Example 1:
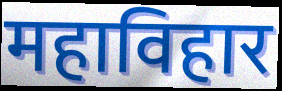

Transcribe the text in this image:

महाविहार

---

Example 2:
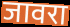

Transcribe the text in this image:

जावरा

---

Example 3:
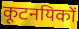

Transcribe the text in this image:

कूटनयिकों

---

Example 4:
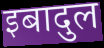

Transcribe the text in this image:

इबादुल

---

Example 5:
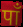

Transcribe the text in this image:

पाँ